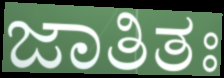
ಜಾತಿತಃ